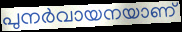
പുനർവായനയാണ്